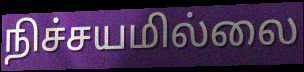
நிச்சயமில்லை